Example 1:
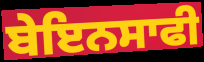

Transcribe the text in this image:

ਬੇਇਨਸਾਫੀ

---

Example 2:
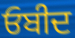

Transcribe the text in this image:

ਓਬੀਦ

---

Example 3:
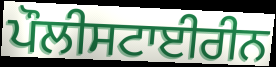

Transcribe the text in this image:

ਪੌਲੀਸਟਾਈਰੀਨ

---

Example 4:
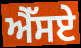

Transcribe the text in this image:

ਐੱਸਏ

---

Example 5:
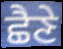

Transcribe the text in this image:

ਛੈਣੇ